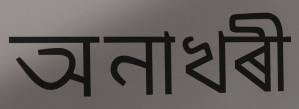
অনাখৰী